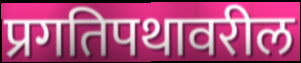
प्रगतिपथावरील